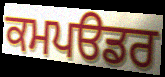
ਕਮਪੳਡਰ